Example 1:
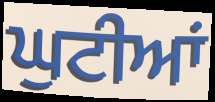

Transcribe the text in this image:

ਘੁਟੀਆਂ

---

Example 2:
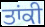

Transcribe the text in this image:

ਤਾਂਕੀ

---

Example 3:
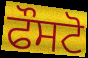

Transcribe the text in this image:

ਫੌਸਟੋ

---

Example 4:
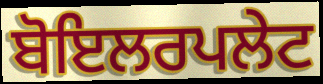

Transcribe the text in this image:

ਬੋਇਲਰਪਲੇਟ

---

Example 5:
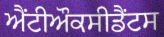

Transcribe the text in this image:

ਐਂਟੀਔਕਸੀਡੈਂਟਸ